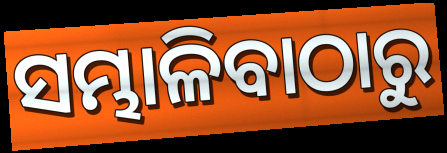
ସମ୍ଭାଳିବାଠାରୁ